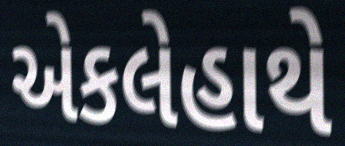
એકલેહાથે